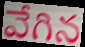
వేగిన